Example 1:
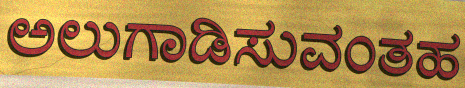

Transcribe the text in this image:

ಅಲುಗಾಡಿಸುವಂತಹ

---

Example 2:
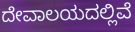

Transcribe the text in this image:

ದೇವಾಲಯದಲ್ಲಿವೆ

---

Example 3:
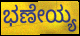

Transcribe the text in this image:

ಭಣೇಯ್ಯ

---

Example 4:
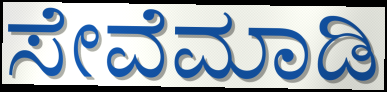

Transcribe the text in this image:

ಸೇವೆಮಾಡಿ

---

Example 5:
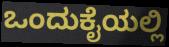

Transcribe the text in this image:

ಒಂದುಕೈಯಲ್ಲಿ